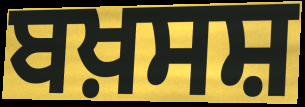
ਬਖ਼ਸਸ਼